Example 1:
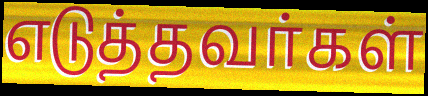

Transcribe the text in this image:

எடுத்தவர்கள்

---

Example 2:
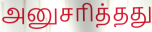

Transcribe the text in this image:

அனுசரித்தது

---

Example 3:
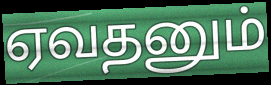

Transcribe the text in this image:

ஏவதனும்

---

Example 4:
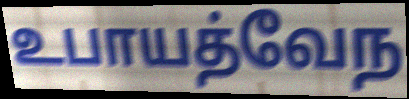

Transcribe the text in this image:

உபாயத்வேந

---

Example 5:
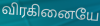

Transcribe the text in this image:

விரகினையே